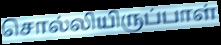
சொல்லியிருப்பாள்